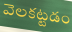
వెలకట్టడం